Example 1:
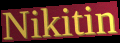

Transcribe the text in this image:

Nikitin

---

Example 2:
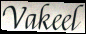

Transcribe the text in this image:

Vakeel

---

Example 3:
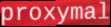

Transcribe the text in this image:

proxymal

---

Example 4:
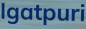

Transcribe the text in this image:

Igatpuri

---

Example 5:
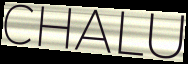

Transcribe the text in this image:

CHALU